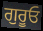
ਗੁਰੂਓ